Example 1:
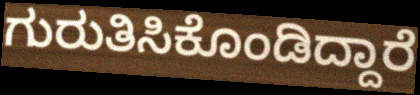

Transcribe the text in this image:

ಗುರುತಿಸಿಕೊಂಡಿದ್ದಾರೆ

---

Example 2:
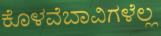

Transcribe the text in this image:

ಕೊಳವೆಬಾವಿಗಳೆಲ್ಲ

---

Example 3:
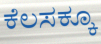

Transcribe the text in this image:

ಕೆಲಸಕ್ಕೂ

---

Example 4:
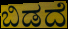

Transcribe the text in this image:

ಬಿಡದೆ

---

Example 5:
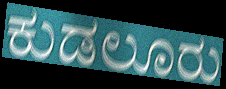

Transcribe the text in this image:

ಕುಡಲೂರು